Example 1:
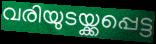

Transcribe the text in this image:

വരിയുടയ്ക്കപ്പെട്ട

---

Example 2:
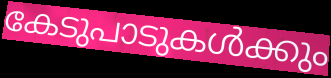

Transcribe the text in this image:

കേടുപാടുകൾക്കും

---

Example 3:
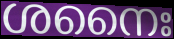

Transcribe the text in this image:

ശനൈഃ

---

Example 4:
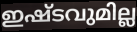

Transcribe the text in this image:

ഇഷ്ടവുമില്ല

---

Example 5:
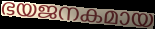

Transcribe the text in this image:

ഭയജനകമായ